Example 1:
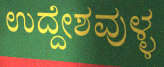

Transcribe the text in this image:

ಉದ್ದೇಶವುಳ್ಳ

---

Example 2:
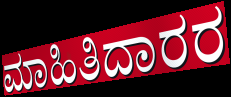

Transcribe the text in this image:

ಮಾಹಿತಿದಾರರ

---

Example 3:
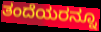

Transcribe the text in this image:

ತಂದೆಯರನ್ನೂ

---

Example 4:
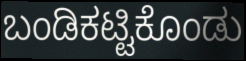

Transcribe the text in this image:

ಬಂಡಿಕಟ್ಟಿಕೊಂಡು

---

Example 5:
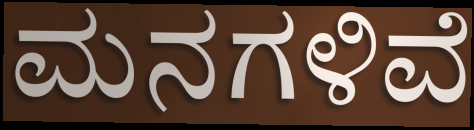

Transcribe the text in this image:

ಮನಗಳಿವೆ